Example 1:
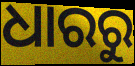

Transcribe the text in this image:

ଧାରରୁ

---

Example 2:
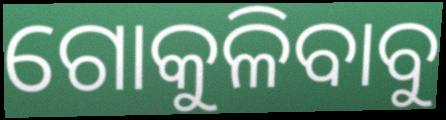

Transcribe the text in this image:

ଗୋକୁଳିବାବୁ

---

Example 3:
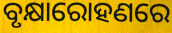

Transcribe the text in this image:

ବୃକ୍ଷାରୋହଣରେ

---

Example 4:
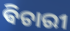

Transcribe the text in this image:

ଵିଚାରୀ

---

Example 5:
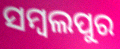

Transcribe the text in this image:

ସମ୍ବଲପୁର